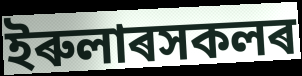
ইৰুলাৰসকলৰ